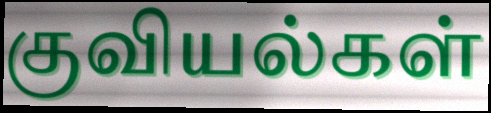
குவியல்கள்